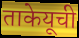
ताकेयूची